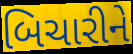
બિચારીને